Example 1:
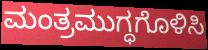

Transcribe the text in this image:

ಮಂತ್ರಮುಗ್ಧಗೊಳಿಸಿ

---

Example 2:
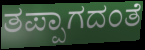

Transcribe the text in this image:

ತಪ್ಪಾಗದಂತೆ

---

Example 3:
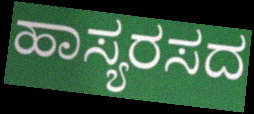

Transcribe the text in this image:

ಹಾಸ್ಯರಸದ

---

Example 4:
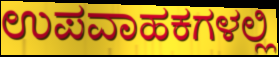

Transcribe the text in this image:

ಉಪವಾಹಕಗಳಲ್ಲಿ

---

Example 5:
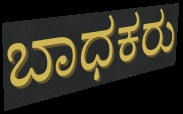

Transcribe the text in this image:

ಬಾಧಕರು